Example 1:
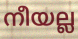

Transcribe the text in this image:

നീയല്ല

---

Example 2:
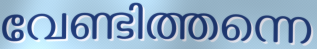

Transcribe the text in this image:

വേണ്ടിത്തന്നെ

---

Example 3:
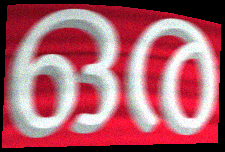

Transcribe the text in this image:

ഒര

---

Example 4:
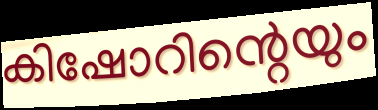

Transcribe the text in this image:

കിഷോറിന്റെയും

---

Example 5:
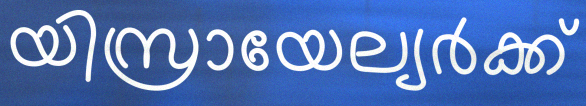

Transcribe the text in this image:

യിസ്രായേല്യർക്ക്